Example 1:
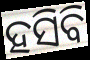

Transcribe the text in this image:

ହସିବି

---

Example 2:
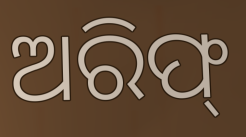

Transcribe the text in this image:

ଅରିଫ୍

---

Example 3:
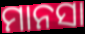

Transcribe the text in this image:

ମାନସା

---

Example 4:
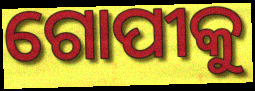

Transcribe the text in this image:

ଗୋପୀକୁ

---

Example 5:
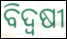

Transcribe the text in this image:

ବିଦ୍ୱଷୀ